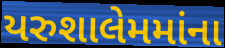
યરુશાલેમમાંના